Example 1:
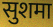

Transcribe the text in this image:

सुशमा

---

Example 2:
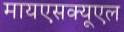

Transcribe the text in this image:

मायएसक्यूएल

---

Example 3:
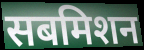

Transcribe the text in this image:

सबमिशन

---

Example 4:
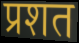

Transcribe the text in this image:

प्रशत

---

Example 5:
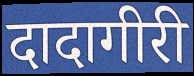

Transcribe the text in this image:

दादागीरी